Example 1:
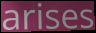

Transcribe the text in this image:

arises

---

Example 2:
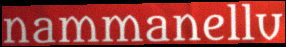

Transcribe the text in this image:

nammanellu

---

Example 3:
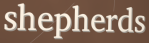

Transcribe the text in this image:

shepherds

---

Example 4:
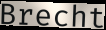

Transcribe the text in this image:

Brecht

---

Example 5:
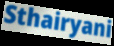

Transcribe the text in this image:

Sthairyani